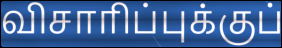
விசாரிப்புக்குப்